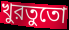
খুরতুতো